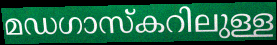
മഡഗാസ്കറിലുള്ള